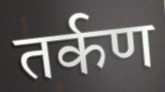
तर्कण